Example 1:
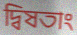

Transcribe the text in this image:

দ্বিষতাং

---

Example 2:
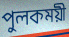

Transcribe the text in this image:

পুলকময়ী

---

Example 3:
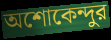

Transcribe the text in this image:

অশোকেন্দুর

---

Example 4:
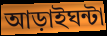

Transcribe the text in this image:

আড়াইঘন্টা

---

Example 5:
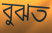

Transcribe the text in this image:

বুঝত